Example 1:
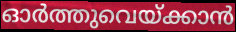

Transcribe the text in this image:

ഓർത്തുവെയ്ക്കാൻ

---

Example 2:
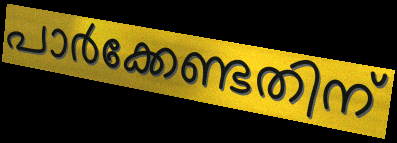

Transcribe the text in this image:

പാർക്കേണ്ടതിന്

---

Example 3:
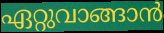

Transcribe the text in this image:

ഏറ്റുവാങ്ങാൻ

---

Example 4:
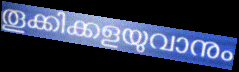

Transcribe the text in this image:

തൂക്കിക്കളയുവാനും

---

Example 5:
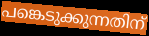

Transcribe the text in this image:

പങ്കെടുക്കുന്നതിന്